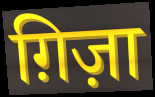
ग़िज़ा